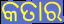
କତାର